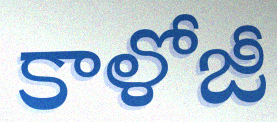
కాళోజీ